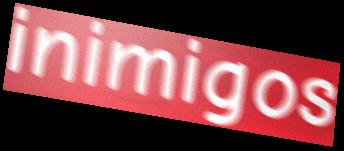
inimigos